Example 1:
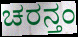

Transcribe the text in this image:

ಚರನ್ತಂ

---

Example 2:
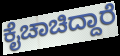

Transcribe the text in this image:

ಕೈಚಾಚಿದ್ದಾರೆ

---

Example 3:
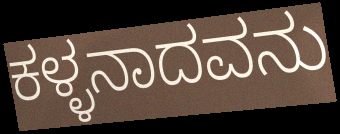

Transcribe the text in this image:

ಕಳ್ಳನಾದವನು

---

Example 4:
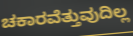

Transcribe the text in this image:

ಚಕಾರವೆತ್ತುವುದಿಲ್ಲ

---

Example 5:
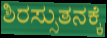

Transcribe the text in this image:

ಶಿರಸ್ಸುತನಕ್ಕೆ